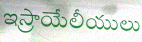
ఇస్రాయేలీయులు